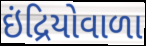
ઇંદ્રિયોવાળા